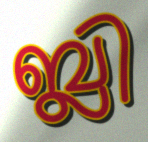
ബ്ലി